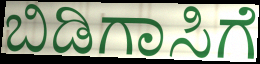
ಬಿಡಿಗಾಸಿಗೆ